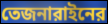
তেজনারাইনের